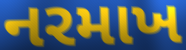
નરમાખ